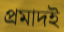
প্রমাদই